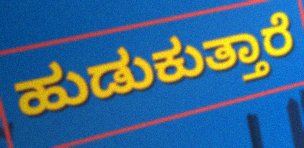
ಹುಡುಕುತ್ತಾರೆ